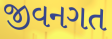
જીવનગત